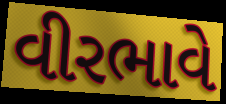
વીરભાવે